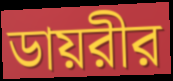
ডায়রীর